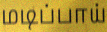
மடிப்பாய்